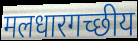
मलधारगच्छीय